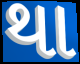
થા